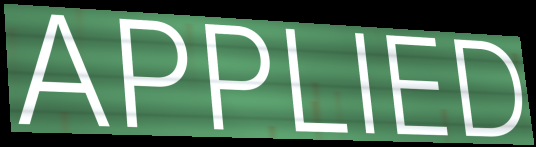
APPLIED